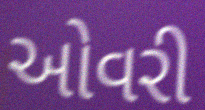
ઓવરી